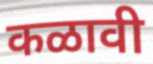
कळावी